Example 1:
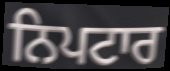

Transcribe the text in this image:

ਨਿਪਟਾਰ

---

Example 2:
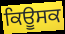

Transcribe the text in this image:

ਕਿਊਸਕ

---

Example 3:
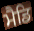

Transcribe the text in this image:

ਮੈਡਿ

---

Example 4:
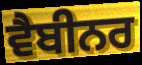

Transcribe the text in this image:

ਵੈਬੀਨਰ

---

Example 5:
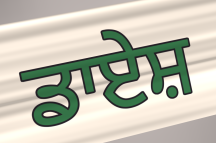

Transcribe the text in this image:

ਡਾਏਸ਼